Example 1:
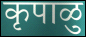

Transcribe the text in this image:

कृपाळु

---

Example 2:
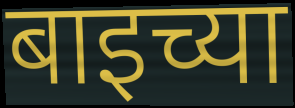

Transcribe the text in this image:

बाइच्या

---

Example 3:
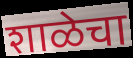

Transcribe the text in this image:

शाळेचा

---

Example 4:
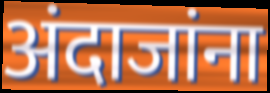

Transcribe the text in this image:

अंदाजांना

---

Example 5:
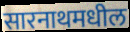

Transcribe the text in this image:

सारनाथमधील